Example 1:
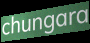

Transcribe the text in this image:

chungara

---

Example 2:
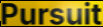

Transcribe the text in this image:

Pursuit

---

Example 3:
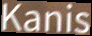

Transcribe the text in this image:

Kanis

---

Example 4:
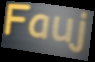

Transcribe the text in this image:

Fauj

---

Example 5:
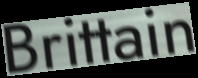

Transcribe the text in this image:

Brittain